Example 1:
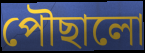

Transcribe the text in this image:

পৌছালো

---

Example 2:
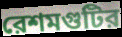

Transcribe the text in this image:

রেশমগুটির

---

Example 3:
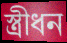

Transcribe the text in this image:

স্ত্রীধন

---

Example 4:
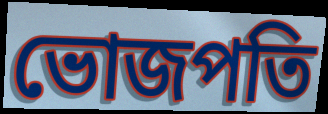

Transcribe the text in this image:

ভোজপতি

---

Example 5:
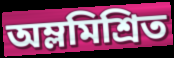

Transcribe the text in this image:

অম্লমিশ্রিত